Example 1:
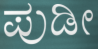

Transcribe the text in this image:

ಪುಡೀ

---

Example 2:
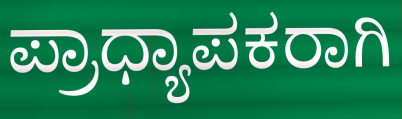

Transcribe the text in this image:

ಪ್ರಾಧ್ಯಾಪಕರಾಗಿ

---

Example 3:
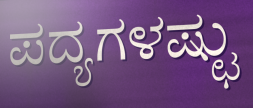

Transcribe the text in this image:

ಪದ್ಯಗಳಷ್ಟು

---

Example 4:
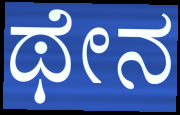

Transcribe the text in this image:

ಥೇನ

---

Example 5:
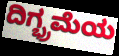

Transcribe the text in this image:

ದಿಗ್ಭ್ರಮೆಯ